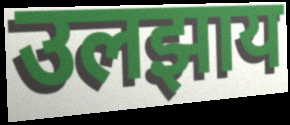
उलझाय